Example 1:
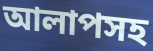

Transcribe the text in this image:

আলাপসহ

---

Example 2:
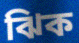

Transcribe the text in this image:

ঝিক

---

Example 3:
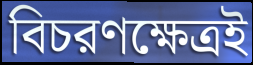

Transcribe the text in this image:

বিচরণক্ষেত্রই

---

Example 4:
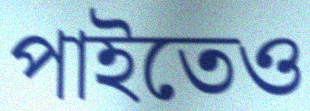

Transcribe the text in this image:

পাইতেও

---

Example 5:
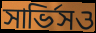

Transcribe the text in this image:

সার্ভিসও